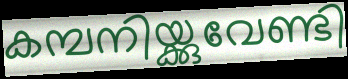
കമ്പനിയ്ക്കുവേണ്ടി